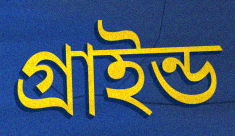
গ্রাইন্ড